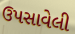
ઉપસાવેલી